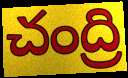
చంద్రి